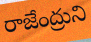
రాజేంద్రుని